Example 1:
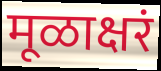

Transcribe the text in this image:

मूळाक्षरं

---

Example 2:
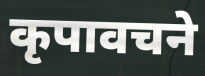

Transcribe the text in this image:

कृपावचने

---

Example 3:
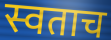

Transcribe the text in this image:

स्वताच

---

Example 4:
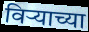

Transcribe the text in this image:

विर्‍याच्या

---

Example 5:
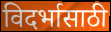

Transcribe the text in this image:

विदर्भासाठी